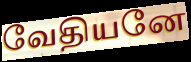
வேதியனே